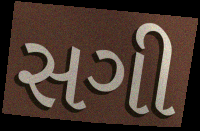
સગી